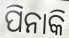
ପିନାକି